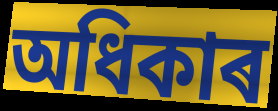
অধিকাৰ